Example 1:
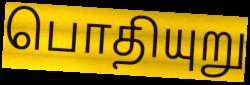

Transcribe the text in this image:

பொதியுறு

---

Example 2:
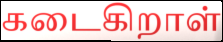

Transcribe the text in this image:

கடைகிறாள்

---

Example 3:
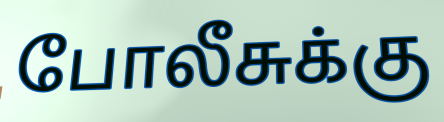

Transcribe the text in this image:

போலீசுக்கு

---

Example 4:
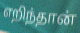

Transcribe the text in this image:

எறிந்தான்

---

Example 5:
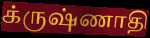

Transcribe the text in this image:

க்ருஷ்ணாதி